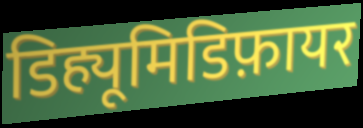
डिह्यूमिडिफ़ायर